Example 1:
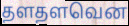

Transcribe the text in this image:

தளதளவென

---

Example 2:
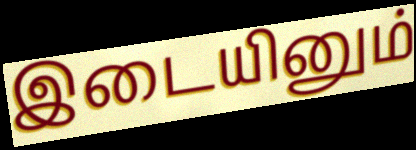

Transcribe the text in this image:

இடையினும்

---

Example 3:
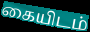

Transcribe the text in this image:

கையிடம்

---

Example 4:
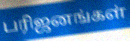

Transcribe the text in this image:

பரிஜனங்கள்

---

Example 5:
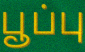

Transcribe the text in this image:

பூப்பு